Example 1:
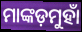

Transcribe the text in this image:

ମାଙ୍କଡ଼ମୁହାଁ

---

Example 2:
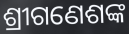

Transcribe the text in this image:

ଶ୍ରୀଗଣେଶଙ୍କ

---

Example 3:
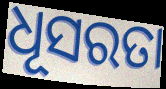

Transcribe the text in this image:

ଧୂସରତା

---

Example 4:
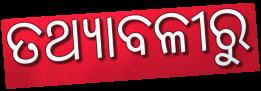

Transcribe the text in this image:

ତଥ୍ୟାବଳୀରୁ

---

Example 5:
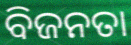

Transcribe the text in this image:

ବିଜନତା